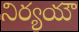
నిర్యయౌ